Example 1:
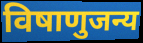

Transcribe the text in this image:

विषाणुजन्य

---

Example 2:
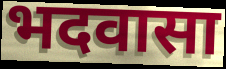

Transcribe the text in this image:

भदवासा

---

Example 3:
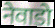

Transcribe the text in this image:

नेवाडो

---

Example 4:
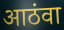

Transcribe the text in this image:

आठंवा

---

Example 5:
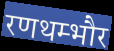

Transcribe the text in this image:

रणथम्भौर